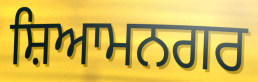
ਸ਼ਿਆਮਨਗਰ